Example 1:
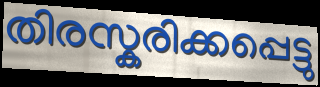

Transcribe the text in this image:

തിരസ്കരിക്കപ്പെട്ടു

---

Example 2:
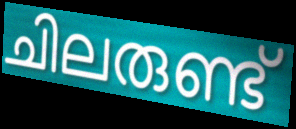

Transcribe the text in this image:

ചിലരുണ്ട്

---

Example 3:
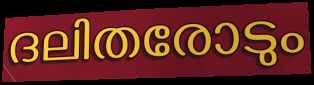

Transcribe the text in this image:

ദലിതരോടും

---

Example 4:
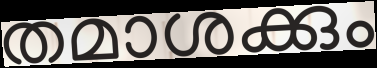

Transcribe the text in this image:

തമാശക്കും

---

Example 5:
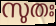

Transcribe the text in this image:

സുതഃ